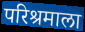
परिश्रमाला